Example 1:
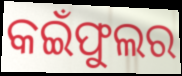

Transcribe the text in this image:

କଇଁଫୁଲର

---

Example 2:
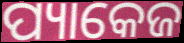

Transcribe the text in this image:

ପ୍ୟାକେଜ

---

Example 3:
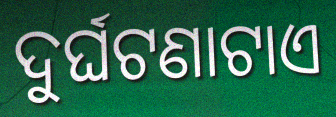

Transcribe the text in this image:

ଦୁର୍ଘଟଣାଟାଏ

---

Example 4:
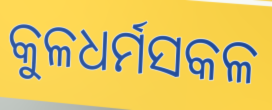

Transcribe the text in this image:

କୁଳଧର୍ମସକଳ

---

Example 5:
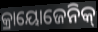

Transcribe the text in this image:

କ୍ରାୟୋଜେନିକ୍